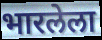
भारलेला